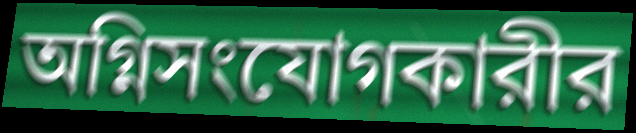
অগ্নিসংযোগকারীর